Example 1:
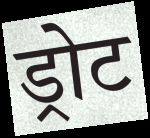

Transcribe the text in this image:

ड्रोट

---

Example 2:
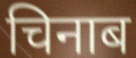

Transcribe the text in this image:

चिनाब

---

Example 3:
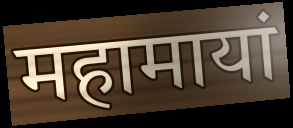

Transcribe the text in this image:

महामायां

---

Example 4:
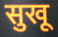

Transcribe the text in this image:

सुखू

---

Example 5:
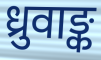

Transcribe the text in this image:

ध्रुवाङ्क